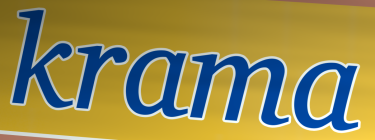
krama